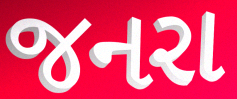
જનરા